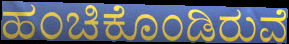
ಹಂಚಿಕೊಂಡಿರುವೆ